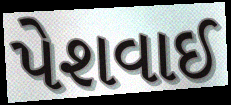
પેશવાઈ